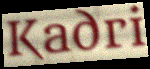
Kadri